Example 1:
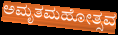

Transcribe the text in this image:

ಅಮೃತಮಹೋತ್ಸವ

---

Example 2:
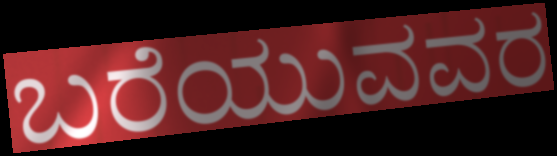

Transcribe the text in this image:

ಬರೆಯುವವರ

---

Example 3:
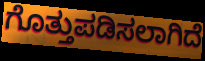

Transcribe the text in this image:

ಗೊತ್ತುಪಡಿಸಲಾಗಿದೆ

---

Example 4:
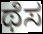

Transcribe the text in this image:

ಥೆಸ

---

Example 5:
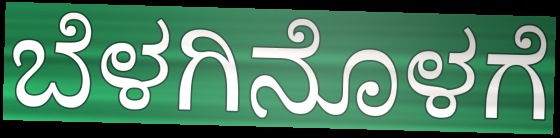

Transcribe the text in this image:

ಬೆಳಗಿನೊಳಗೆ